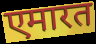
एमारत